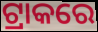
ଟ୍ରାକରେ